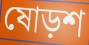
ষোড়শ